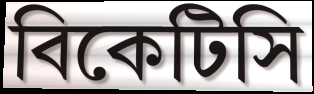
বিকেটিসি